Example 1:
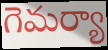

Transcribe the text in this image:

గెమర్యా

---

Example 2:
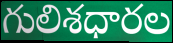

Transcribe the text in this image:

గులిశధారల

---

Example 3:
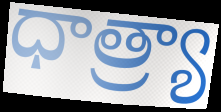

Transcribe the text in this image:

ధాత్ర్యా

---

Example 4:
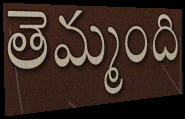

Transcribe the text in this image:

తెమ్మంది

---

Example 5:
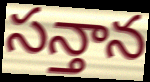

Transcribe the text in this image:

సన్తాన